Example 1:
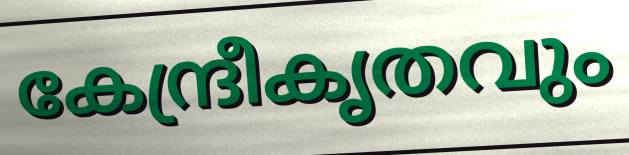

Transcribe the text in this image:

കേന്ദ്രീകൃതവും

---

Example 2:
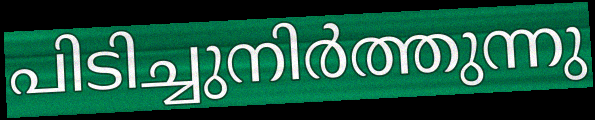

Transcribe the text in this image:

പിടിച്ചുനിർത്തുന്നു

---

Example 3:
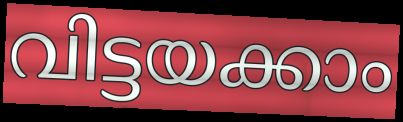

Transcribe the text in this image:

വിട്ടയക്കാം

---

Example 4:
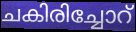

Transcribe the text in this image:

ചകിരിച്ചോറ്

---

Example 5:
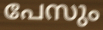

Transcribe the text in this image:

പേസും